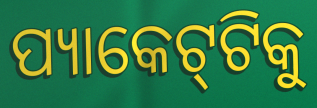
ପ୍ୟାକେଟ୍‌ଟିକୁ